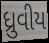
ધ્રુવીય